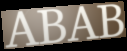
ABAB